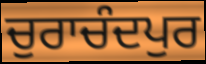
ਚੁਰਾਚੰਦਪੁਰ